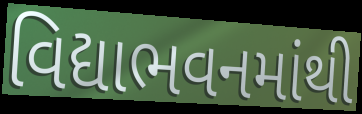
વિદ્યાભવનમાંથી